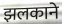
झलकाने